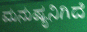
ಮನುಷ್ಯನಿಗಿದೆ